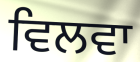
ਵਿਲਵਾ